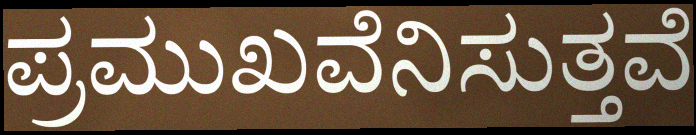
ಪ್ರಮುಖವೆನಿಸುತ್ತವೆ